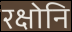
रक्षोनि